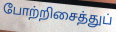
போற்றிசைத்துப்